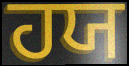
ਹਯ